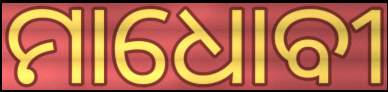
ମାଧୋବୀ